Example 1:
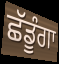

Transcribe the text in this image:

ਛੱਡੂੰਗਾ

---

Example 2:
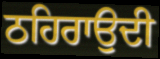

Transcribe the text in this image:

ਠਹਿਰਾਉਦੀ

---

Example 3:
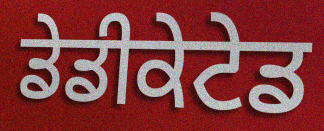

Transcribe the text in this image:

ਡੇਡੀਕੇਟੇਡ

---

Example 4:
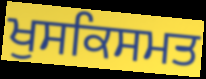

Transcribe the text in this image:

ਖੁਸਕਿਸਮਤ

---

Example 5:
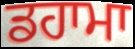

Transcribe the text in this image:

ਡਹਾਮਾ